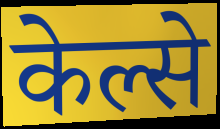
केल्से